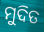
ମୁଦିତ